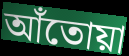
আঁতোয়া